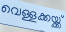
വെള്ളക്കയ്ക്ക്